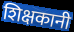
शिक्षकानी